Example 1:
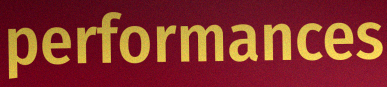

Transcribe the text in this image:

performances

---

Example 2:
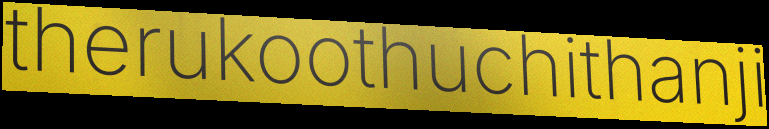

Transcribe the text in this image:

therukoothuchithanji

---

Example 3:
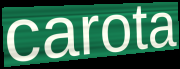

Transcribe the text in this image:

carota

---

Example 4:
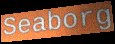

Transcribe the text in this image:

Seaborg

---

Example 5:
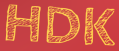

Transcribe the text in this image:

HDK